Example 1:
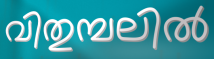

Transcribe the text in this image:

വിതുമ്പലിൽ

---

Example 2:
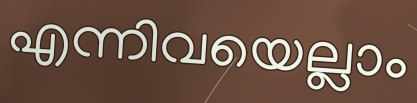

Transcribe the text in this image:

എന്നിവയെല്ലാം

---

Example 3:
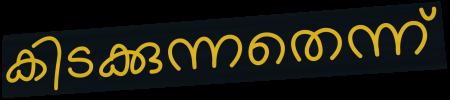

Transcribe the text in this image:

കിടക്കുന്നതെന്ന്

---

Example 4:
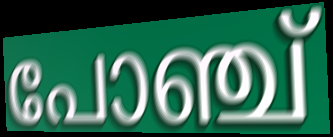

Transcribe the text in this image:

പോഞ്ച്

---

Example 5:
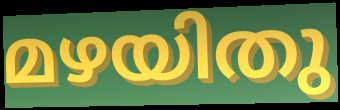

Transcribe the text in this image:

മഴയിതു